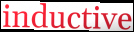
inductive